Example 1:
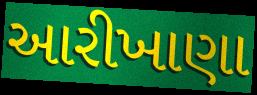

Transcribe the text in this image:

આરીખાણા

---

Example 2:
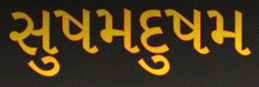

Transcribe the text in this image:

સુષમદુષમ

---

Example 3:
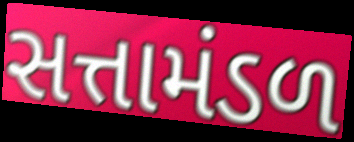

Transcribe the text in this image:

સત્તામંડળ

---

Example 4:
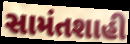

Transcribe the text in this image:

સામંતશાહી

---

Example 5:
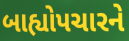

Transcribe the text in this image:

બાહ્યોપચારને